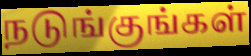
நடுங்குங்கள்